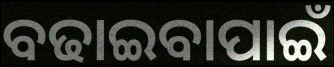
ବଢାଇବାପାଇଁ